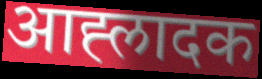
आह्लादक